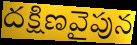
దక్షిణవైపున